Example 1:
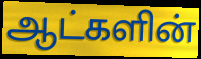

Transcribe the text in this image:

ஆட்களின்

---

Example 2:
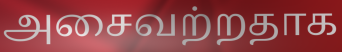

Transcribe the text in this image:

அசைவற்றதாக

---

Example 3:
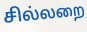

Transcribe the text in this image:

சில்லறை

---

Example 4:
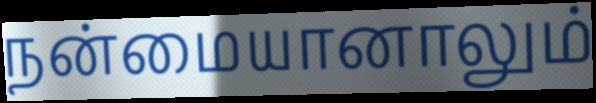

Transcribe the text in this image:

நன்மையானாலும்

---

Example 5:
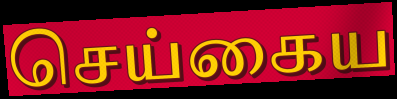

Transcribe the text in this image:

செய்கைய